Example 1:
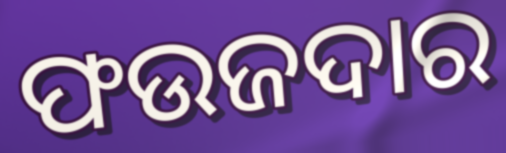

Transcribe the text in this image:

ଫଉଜଦାର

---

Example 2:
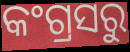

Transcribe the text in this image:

କଂଗ୍ରସରୁ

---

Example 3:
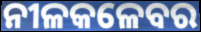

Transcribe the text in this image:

ନୀଳକଳେବର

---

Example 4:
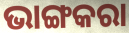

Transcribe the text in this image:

ଭାଙ୍ଗକରା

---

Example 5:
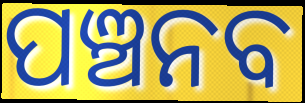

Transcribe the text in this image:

ପଞ୍ଚନବ